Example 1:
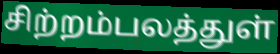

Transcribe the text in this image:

சிற்றம்பலத்துள்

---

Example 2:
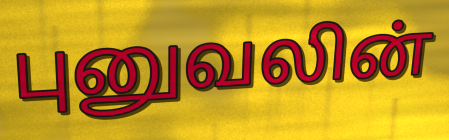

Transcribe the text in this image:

புனுவலின்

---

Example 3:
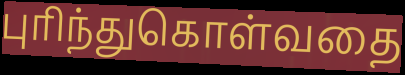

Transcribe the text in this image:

புரிந்துகொள்வதை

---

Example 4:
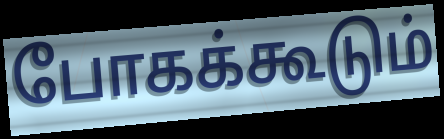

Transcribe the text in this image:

போகக்கூடும்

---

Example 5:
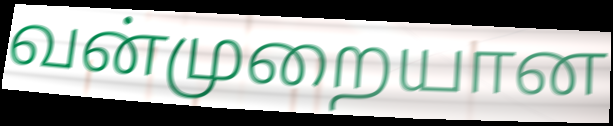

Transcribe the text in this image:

வன்முறையான